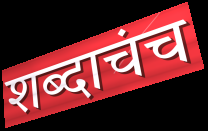
शब्दाचंच